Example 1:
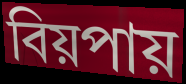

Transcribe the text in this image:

বিয়পায়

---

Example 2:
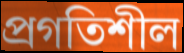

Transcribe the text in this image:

প্ৰগতিশীল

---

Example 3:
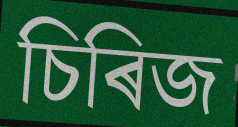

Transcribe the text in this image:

চিৰিজ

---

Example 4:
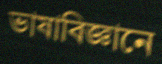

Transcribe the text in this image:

ভাষাবিজ্ঞানে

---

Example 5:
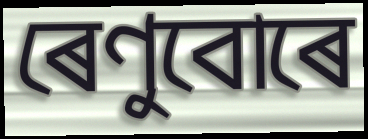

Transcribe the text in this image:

ৰেণুবোৰে